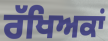
ਰੱਖਿਅਕਾਂ